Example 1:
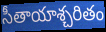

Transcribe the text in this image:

సీతాయాశ్చరితం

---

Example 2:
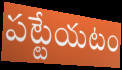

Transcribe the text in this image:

పట్టేయటం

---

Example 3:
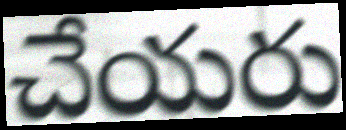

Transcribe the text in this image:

చేయరు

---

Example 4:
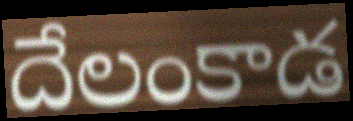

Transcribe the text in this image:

దేలంకాడ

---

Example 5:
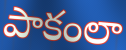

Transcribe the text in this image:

పాకంలా